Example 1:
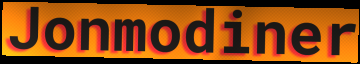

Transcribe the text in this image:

Jonmodiner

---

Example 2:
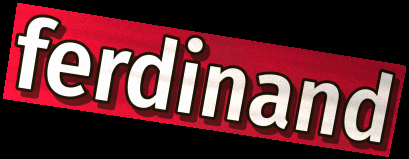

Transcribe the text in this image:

ferdinand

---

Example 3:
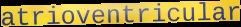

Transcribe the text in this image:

atrioventricular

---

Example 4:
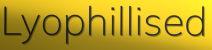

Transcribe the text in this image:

Lyophillised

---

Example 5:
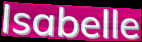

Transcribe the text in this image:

Isabelle